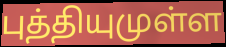
புத்தியுமுள்ள